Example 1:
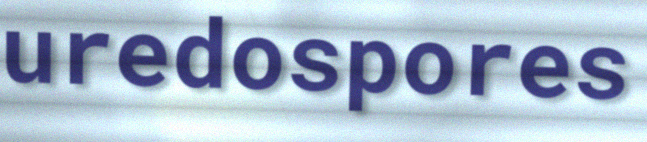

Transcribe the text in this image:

uredospores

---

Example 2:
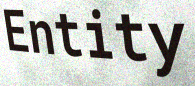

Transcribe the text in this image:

Entity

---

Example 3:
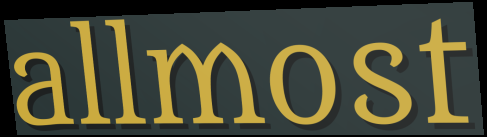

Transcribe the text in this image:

allmost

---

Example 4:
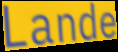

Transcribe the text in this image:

Lande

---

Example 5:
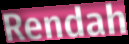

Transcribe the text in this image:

Rendah